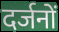
दर्जनों